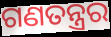
ଗଣତନ୍ତ୍ରର